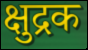
क्षुद्रक